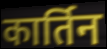
कार्तिन